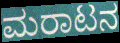
ಮರಾಟನ